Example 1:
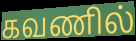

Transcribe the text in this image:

கவணில்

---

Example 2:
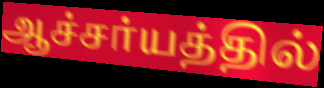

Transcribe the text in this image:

ஆச்சர்யத்தில்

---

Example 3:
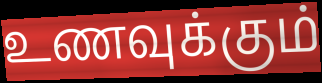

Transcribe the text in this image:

உணவுக்கும்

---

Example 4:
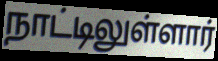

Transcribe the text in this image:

நாட்டிலுள்ளார்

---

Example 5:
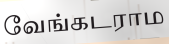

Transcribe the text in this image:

வேங்கடராம